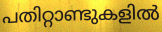
പതിറ്റാണ്ടുകളിൽ